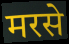
मरसे